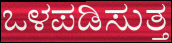
ಒಳಪಡಿಸುತ್ತ